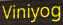
Viniyog